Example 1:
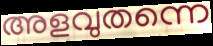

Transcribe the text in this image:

അളവുതന്നെ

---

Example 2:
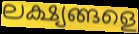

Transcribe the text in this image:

ലക്ഷ്യങ്ങളെ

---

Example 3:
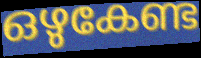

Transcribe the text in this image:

ഒഴുകേണ്ട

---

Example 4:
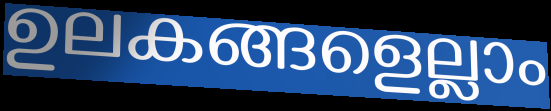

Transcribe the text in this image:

ഉലകങ്ങളെല്ലാം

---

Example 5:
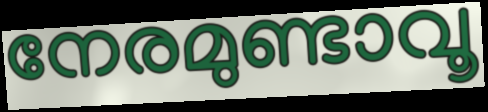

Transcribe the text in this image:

നേരമുണ്ടാവൂ